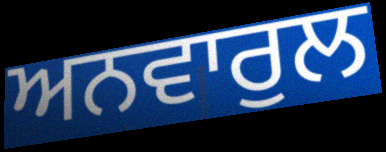
ਅਨਵਾਰੁਲ